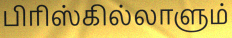
பிரிஸ்கில்லாளும்